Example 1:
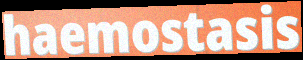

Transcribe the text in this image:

haemostasis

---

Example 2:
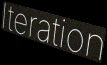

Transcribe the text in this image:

Iteration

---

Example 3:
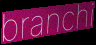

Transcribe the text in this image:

branchi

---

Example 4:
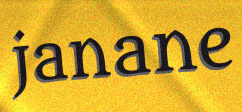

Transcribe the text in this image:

janane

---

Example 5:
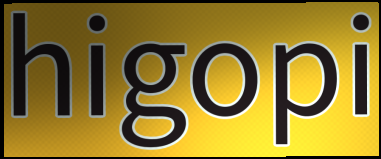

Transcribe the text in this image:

higopi